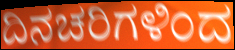
ದಿನಚರಿಗಳಿಂದ